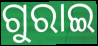
ଗୁରାଇ